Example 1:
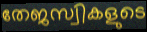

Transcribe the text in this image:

തേജസ്വികളുടെ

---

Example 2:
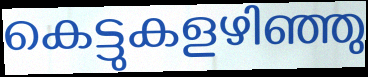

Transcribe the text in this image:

കെട്ടുകളഴിഞ്ഞു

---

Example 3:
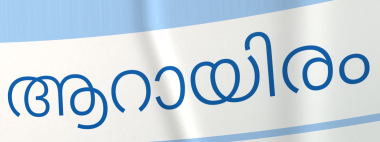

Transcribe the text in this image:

ആറായിരം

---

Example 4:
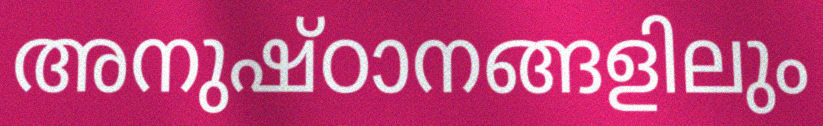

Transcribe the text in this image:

അനുഷ്ഠാനങ്ങളിലും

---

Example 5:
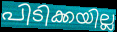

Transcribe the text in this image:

പിടിക്കയില്ല